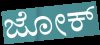
ಜೋಕ್